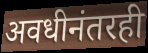
अवधीनंतरही